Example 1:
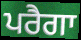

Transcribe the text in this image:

ਪਰੈਗਾ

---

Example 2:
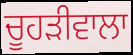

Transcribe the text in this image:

ਚੂਹੜੀਵਾਲਾ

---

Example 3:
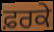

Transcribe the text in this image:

ਫ਼ਰਕੇ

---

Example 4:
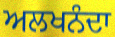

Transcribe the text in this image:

ਅਲਖਨੰਦਾ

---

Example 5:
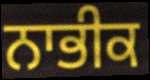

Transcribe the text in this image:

ਨਾਭੀਕ